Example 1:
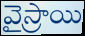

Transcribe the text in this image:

వైస్రాయి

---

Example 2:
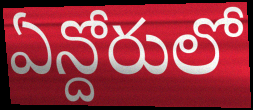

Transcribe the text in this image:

ఏన్దోరులో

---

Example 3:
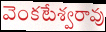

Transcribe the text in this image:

వెంకటేశ్వరావు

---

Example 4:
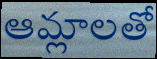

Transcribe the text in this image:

ఆమ్లాలతో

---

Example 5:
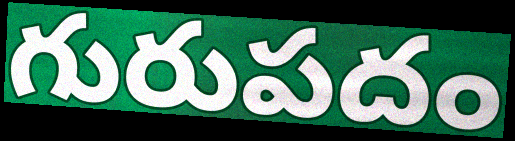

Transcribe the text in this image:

గురుపదం